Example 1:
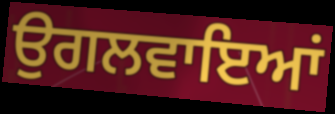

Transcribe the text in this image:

ਉਗਲਵਾਇਆਂ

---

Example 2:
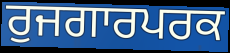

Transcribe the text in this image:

ਰੁਜਗਾਰਪਰਕ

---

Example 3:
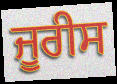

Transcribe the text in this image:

ਜੂਰੀਸ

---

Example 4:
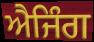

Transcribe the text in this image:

ਐਜਿੰਗ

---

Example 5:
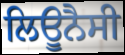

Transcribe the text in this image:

ਲਿਊਨੈਸੀ